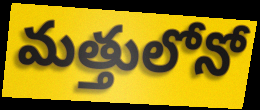
మత్తులోనో